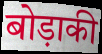
बोड़ाकी